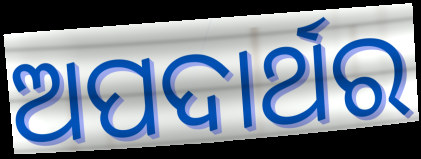
ଅପଦାର୍ଥର